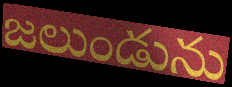
జలుండును